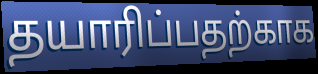
தயாரிப்பதற்காக